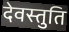
देवस्तुति